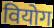
वियोग